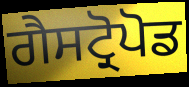
ਗੈਸਟ੍ਰੋਪੋਡ